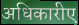
अधिकारीए